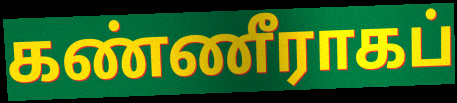
கண்ணீராகப்